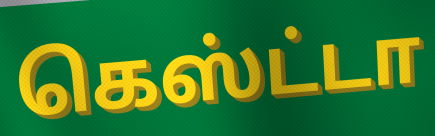
கெஸ்ட்டா